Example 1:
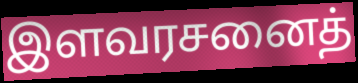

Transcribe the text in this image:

இளவரசனைத்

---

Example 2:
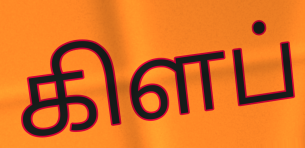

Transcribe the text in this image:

கிளப்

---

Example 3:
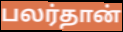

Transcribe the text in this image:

பலர்தான்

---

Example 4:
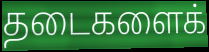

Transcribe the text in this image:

தடைகளைக்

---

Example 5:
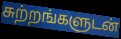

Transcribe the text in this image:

சுற்றங்களுடன்